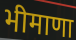
भीमाणा